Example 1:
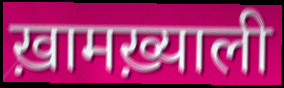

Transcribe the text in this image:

ख़ामख़्याली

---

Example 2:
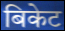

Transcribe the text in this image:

बिकेट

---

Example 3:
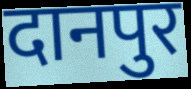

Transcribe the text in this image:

दानपुर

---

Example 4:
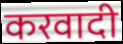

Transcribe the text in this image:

करवादी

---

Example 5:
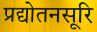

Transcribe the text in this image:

प्रद्योतनसूरि